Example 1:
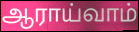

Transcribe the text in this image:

ஆராய்வாம்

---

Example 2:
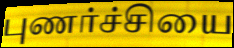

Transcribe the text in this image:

புணர்ச்சியை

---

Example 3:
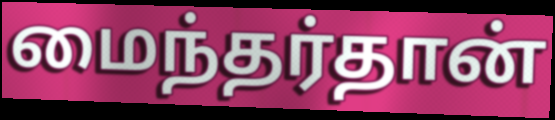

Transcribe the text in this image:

மைந்தர்தான்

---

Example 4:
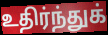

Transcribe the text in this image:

உதிர்ந்துக்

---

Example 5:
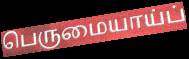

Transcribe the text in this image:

பெருமையாய்ப்